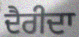
ਦੈਰੀਦਾ